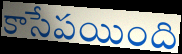
కాసేపయింది